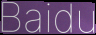
Baidu